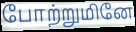
போற்றுமினே